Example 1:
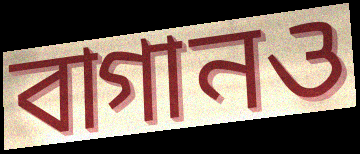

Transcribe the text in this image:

বাগানও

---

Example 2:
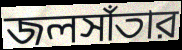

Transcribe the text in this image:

জলসাঁতার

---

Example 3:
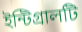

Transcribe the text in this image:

ইন্টিগ্রালটি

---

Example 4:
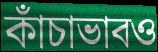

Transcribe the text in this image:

কাঁচাভাবও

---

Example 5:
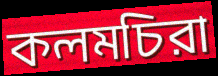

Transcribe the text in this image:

কলমচিরা